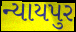
ન્યાયપુર